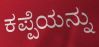
ಕಪ್ಪೆಯನ್ನು